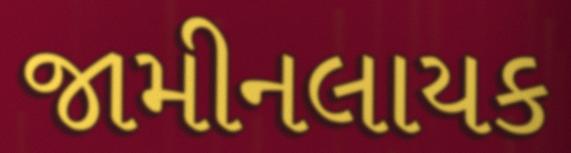
જામીનલાયક